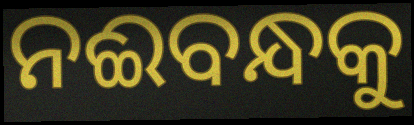
ନଈବନ୍ଧକୁ